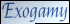
Exogamy